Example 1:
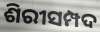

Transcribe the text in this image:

ଶିରୀସମ୍ପଦ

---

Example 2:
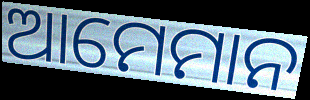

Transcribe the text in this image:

ଆମେମାନ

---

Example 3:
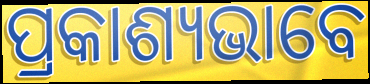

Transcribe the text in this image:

ପ୍ରକାଶ୍ୟଭାବେ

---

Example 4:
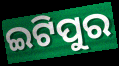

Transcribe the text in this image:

ଇଟିପୁର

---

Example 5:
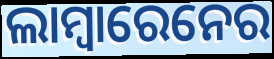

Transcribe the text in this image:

ଲାମ୍ବାରେନେର